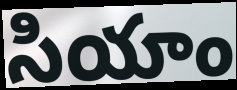
సియాం